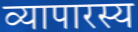
व्यापारस्य